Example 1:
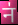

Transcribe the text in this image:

न॑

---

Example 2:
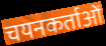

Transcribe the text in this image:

चयनकर्ताओं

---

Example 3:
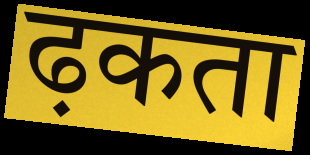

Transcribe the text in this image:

ढ़कता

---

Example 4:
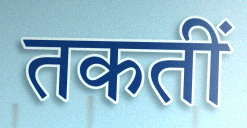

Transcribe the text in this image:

तकतीं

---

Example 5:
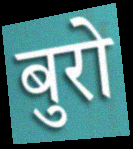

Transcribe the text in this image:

बुरो